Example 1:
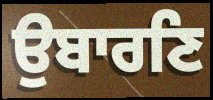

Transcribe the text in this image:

ਉਬਾਰਣਿ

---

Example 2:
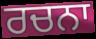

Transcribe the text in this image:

ਰਚਨਾ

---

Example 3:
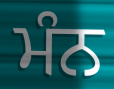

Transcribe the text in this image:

ਮੰਨ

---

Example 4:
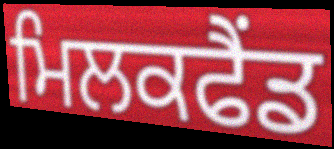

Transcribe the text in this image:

ਮਿਲਕਫੈਂਡ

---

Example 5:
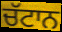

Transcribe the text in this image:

ਚੱਟਾਨ